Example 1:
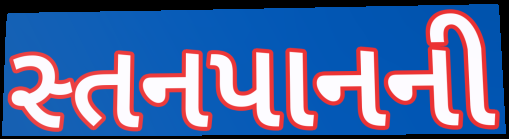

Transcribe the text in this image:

સ્તનપાનની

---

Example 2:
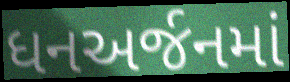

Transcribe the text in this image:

ધનઅર્જનમાં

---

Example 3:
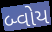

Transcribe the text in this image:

બ્વોય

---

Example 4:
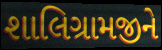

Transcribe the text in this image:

શાલિગ્રામજીને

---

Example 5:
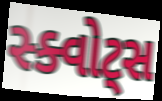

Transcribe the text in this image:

સ્ક્વોટ્સ